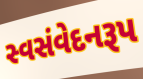
સ્વસંવેદનરૂપ